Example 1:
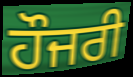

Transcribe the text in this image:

ਹੌਜਰੀ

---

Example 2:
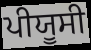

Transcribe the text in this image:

ਪੀਯੂਸੀ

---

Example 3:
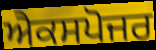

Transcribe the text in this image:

ਐਕਸਪੋਜਰ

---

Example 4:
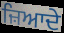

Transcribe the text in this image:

ਜ਼ਿਆਦੇ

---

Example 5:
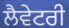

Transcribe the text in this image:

ਲੈਵੇਟਰੀ